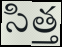
సిత్త